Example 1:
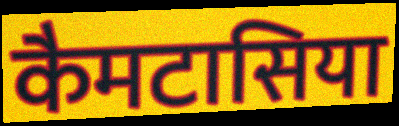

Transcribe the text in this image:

कैमटासिया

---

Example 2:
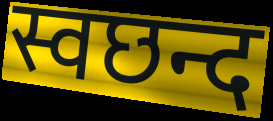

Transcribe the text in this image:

स्वछन्द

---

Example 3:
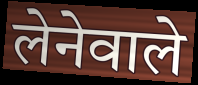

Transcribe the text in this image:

लेनेवाले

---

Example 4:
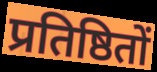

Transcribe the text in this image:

प्रतिष्ठितों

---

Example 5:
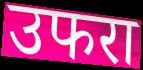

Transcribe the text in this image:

उफरा